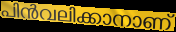
പിൻവലിക്കാനാണ്